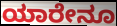
ಯಾರೇನೂ